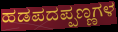
ಹಡಪದಪ್ಪಣ್ಣಗಳ